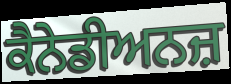
ਕੈਨੇਡੀਅਨਜ਼